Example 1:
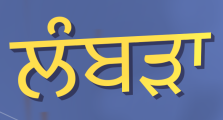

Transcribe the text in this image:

ਲੰਬੜਾ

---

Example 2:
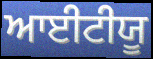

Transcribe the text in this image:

ਆਈਟੀਯੂ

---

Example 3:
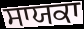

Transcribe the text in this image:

ਸਾਯਕਾ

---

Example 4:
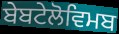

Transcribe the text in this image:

ਬੇਬਟੇਲੋਵਿਮਬ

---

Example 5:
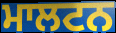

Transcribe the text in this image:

ਮਾਲਟਨ